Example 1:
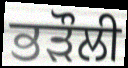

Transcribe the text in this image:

ਭੜੌਲੀ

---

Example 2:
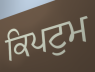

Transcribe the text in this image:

ਕਿਪਟੁਮ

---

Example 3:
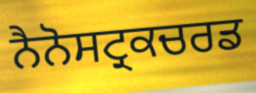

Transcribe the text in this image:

ਨੈਨੋਸਟ੍ਰਕਚਰਡ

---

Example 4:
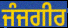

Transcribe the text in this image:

ਜੰਜਗੀਰ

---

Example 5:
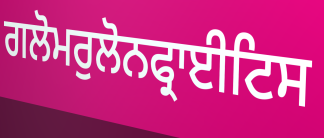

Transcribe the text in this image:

ਗਲੋਮਰੁਲੋਨਫ੍ਰਾਈਟਿਸ